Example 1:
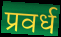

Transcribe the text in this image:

प्रवर्ध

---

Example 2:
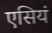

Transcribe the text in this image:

एसियं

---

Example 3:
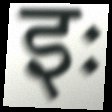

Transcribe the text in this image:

इः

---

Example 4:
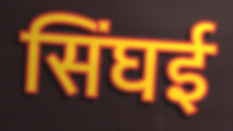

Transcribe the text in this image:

सिंघई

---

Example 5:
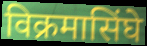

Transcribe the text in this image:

विक्रमासिंघे